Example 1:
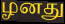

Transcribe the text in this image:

ழனது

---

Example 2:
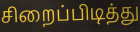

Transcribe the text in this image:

சிறைப்பிடித்து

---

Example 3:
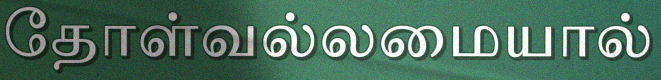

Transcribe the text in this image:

தோள்வல்லமையால்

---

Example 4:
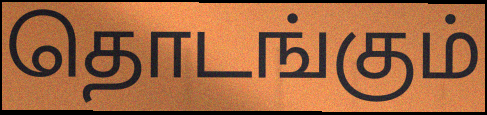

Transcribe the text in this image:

தொடங்கும்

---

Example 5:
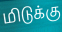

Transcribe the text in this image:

மிடுக்கு